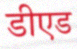
डीएड